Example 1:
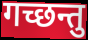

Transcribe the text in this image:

गच्छन्तु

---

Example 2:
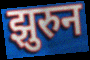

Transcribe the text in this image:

झुरुन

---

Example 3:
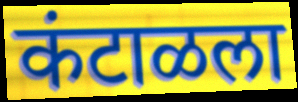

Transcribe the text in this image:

कंटाळला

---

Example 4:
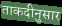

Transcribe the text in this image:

ताकदीनुसार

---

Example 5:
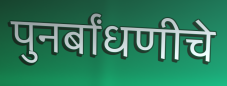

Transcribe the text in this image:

पुनर्बांधणीचे